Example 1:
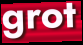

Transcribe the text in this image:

grot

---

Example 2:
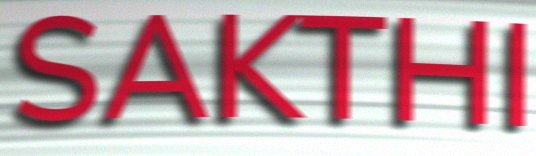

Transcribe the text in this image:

SAKTHI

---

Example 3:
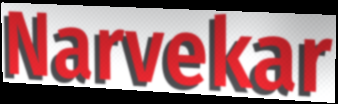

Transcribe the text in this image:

Narvekar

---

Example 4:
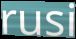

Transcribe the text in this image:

rusi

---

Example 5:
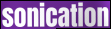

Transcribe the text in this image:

sonication